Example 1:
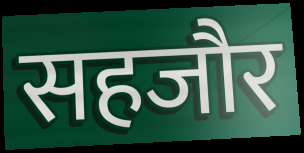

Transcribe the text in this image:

सहजौर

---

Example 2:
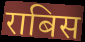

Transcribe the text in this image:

राबिस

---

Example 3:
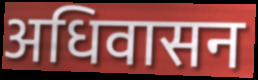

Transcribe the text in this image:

अधिवासन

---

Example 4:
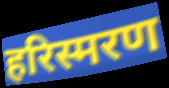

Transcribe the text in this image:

हरिस्मरण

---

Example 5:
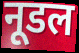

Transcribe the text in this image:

नूडल